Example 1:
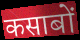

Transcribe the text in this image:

कसाबों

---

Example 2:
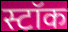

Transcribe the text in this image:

स्‍टॉक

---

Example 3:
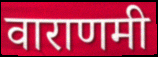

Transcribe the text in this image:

वाराणमी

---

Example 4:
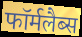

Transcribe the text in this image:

फॉर्मलैब्स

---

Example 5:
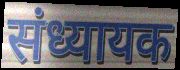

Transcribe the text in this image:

संध्यायक